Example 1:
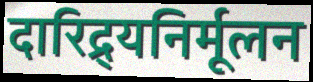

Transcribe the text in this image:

दारिद्र्यनिर्मूलन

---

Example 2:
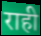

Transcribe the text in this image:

राही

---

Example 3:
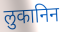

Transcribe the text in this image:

लुकानिन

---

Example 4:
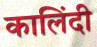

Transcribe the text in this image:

कालिंदी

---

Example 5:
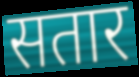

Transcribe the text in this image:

सतार